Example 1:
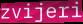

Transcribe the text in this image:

zvijeri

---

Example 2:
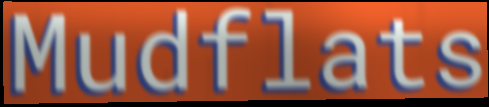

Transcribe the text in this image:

Mudflats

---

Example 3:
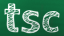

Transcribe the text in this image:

tsc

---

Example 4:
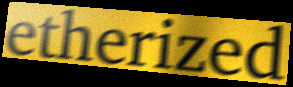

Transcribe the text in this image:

etherized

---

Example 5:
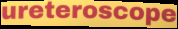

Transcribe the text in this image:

ureteroscope